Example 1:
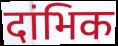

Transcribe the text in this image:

दांभिक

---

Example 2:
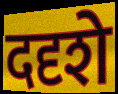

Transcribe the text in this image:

ददृशे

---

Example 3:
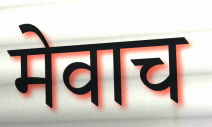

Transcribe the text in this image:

मेवाच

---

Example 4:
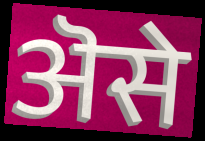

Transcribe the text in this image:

ऄसे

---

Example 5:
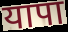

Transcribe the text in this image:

यापा